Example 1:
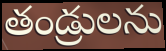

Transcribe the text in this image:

తండ్రులను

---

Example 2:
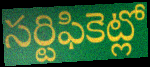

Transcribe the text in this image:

సర్టిఫికెట్లో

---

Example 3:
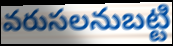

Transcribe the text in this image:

వరుసలనుబట్టి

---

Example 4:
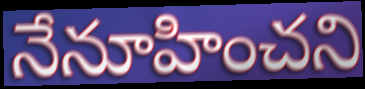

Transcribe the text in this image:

నేనూహించని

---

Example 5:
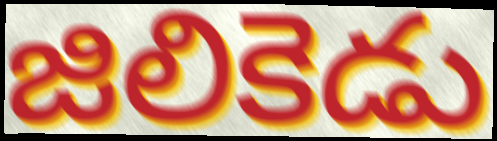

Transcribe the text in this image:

జిలికెడు